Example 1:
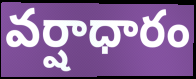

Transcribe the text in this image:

వర్షాధారం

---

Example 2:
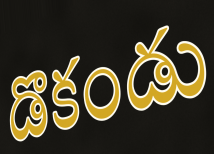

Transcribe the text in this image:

డొకండు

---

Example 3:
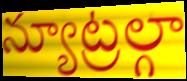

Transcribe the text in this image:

న్యూట్రల్గా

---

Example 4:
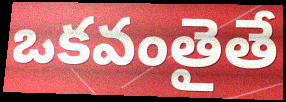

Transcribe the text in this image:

ఒకవంతైతే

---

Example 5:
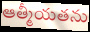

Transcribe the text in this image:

ఆత్మీయతను